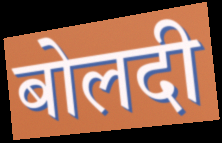
बोलदी